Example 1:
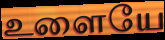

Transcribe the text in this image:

உளையே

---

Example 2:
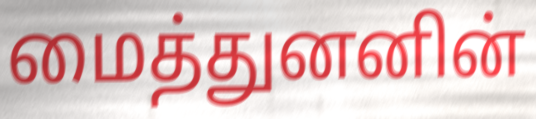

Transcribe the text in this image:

மைத்துனனின்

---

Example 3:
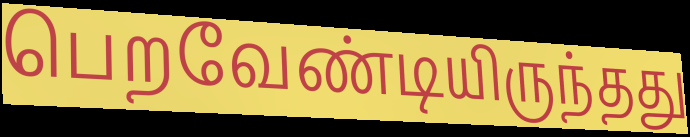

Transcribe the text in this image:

பெறவேண்டியிருந்தது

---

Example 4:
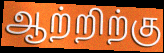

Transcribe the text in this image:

ஆற்றிற்கு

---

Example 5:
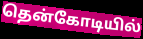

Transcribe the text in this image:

தென்கோடியில்